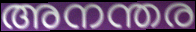
അനന്തര